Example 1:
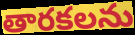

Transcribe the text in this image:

తారకలను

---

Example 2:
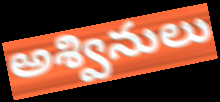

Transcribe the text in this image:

అశ్వినులు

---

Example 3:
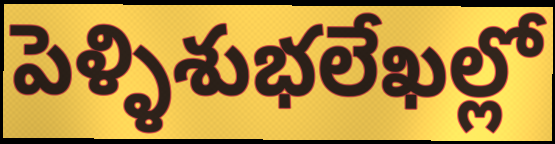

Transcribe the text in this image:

పెళ్ళిశుభలేఖల్లో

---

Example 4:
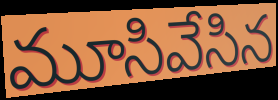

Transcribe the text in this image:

మూసివేసిన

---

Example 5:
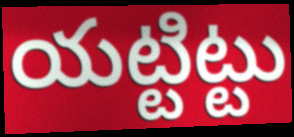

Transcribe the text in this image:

యట్టిట్టు